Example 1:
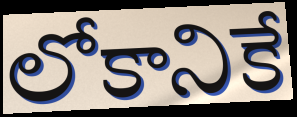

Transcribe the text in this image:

లోకానికే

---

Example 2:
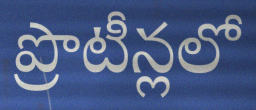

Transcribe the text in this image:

ప్రొటీన్లలో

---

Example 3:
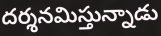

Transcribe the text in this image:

దర్శనమిస్తున్నాడు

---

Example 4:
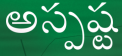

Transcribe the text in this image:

అస్పష్ట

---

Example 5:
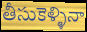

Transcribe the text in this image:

తీసుకెళ్ళినా